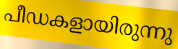
പീഡകളായിരുന്നു